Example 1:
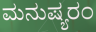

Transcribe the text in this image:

ಮನುಷ್ಯರಂ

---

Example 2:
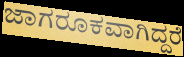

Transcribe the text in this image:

ಜಾಗರೂಕವಾಗಿದ್ದರೆ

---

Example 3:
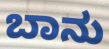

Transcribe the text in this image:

ಬಾನು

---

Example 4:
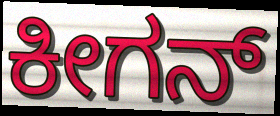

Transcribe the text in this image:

ಕೀಗನ್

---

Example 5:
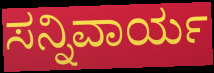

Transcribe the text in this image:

ಸನ್ನಿವಾರ್ಯ